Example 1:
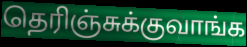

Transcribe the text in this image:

தெரிஞ்சுக்குவாங்க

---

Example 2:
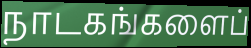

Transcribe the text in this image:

நாடகங்களைப்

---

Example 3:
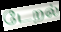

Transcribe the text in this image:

டேறல்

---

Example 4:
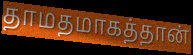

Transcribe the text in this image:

தாமதமாகத்தான்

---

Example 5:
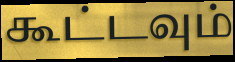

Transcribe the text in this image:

கூட்டவும்